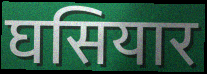
घसियार